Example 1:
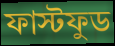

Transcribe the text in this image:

ফাস্টফুড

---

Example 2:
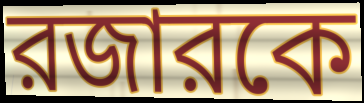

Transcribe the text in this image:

রজারকে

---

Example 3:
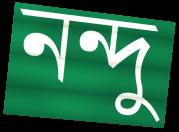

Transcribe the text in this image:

নন্দু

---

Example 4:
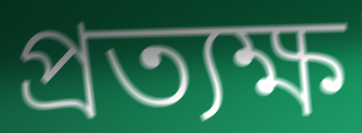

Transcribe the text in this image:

প্রত্যক্ষ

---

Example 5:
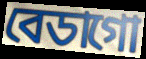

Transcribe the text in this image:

বেডাগো